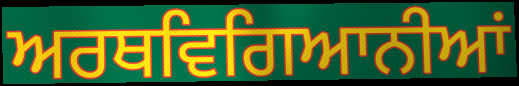
ਅਰਥਵਿਗਿਆਨੀਆਂ